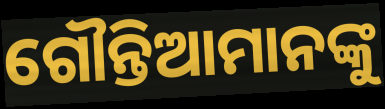
ଗୌନ୍ତିଆମାନଙ୍କୁ